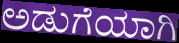
ಅಡುಗೆಯಾಗಿ